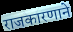
राजकारणाने